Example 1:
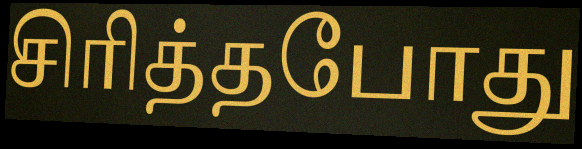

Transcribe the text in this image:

சிரித்தபோது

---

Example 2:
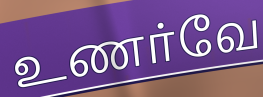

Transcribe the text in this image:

உணர்வே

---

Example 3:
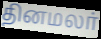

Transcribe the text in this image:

தினமலர்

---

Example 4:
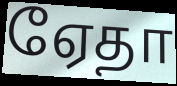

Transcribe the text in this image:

ஏேதா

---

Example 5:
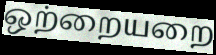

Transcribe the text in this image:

ஒற்றையறை